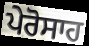
ਪੇਰੋਸਾਹ